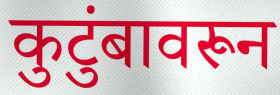
कुटुंबावरून